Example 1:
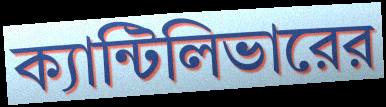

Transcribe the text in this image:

ক্যান্টিলিভারের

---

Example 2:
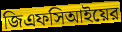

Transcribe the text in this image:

জিএফসিআইয়ের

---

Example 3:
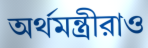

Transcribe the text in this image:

অর্থমন্ত্রীরাও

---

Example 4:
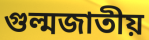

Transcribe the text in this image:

গুল্মজাতীয়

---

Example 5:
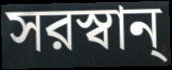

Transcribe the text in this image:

সরস্বান্